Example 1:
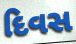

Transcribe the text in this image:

દિવસ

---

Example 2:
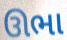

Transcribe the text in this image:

ઊભા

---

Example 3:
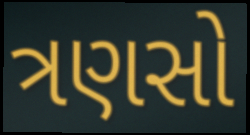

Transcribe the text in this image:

ત્રણસો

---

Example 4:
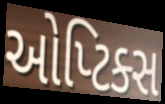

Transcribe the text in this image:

ઓપ્ટિક્સ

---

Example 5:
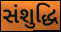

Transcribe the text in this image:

સંશુદ્ધિ